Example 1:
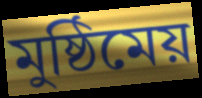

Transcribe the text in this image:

মুষ্ঠিমেয়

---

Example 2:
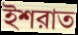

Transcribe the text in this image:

ইশরাত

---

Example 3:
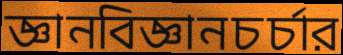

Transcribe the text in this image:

জ্ঞানবিজ্ঞানচর্চার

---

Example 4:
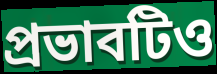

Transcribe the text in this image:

প্রভাবটিও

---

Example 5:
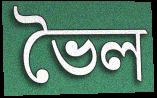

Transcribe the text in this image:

ভৈল